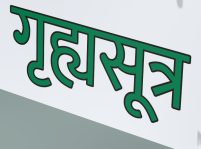
गृह्यसूत्र